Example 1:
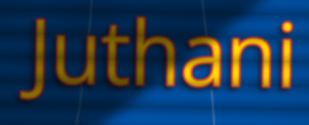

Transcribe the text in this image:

Juthani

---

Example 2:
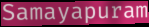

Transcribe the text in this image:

Samayapuram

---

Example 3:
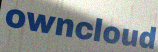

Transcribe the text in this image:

owncloud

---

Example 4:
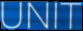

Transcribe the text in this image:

UNIT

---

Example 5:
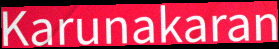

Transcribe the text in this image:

Karunakaran